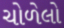
ચોળેલો